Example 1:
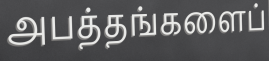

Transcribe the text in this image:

அபத்தங்களைப்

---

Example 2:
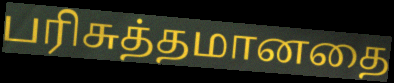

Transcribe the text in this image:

பரிசுத்தமானதை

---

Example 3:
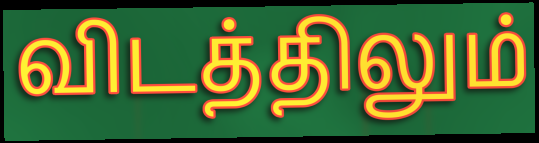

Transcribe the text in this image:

விடத்திலும்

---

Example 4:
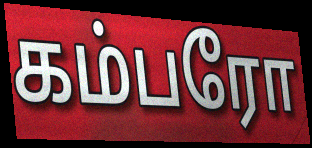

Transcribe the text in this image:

கம்பரோ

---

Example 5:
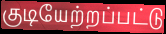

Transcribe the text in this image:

குடியேற்றப்பட்டு